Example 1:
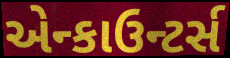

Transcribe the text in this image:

એન્કાઉન્ટર્સ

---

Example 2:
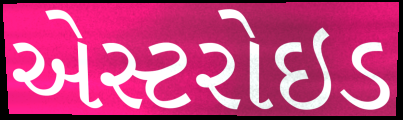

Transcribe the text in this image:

એસ્ટરોઇડ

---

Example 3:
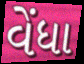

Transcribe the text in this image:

વેંધા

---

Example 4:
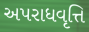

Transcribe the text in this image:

અપરાધવૃત્તિ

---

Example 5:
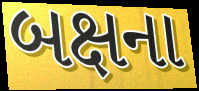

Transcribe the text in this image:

બક્ષના